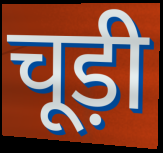
चूड़ी